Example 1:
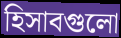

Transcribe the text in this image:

হিসাবগুলো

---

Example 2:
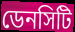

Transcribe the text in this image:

ডেনসিটি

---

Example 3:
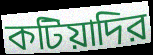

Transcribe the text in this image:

কটিয়াদির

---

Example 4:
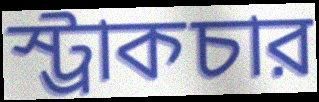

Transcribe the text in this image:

স্ট্রাকচার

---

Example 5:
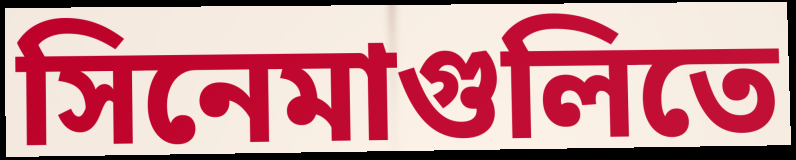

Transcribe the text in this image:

সিনেমাগুলিতে